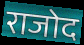
राजोद